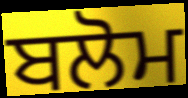
ਬਲੋਮ